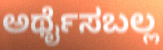
ಅರ್ಥೈಸಬಲ್ಲ